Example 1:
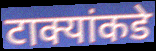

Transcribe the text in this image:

टाक्यांकडे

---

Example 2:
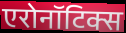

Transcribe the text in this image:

एरोनॉटिक्स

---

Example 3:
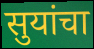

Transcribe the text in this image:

सुयांचा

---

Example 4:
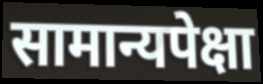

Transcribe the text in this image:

सामान्यपेक्षा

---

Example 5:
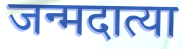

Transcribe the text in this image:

जन्मदात्या